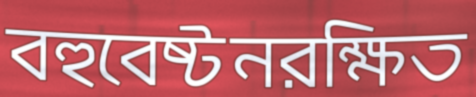
বহুবেষ্টনরক্ষিত